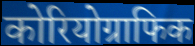
कोरियोग्राफिक